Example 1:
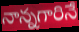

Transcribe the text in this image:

నాన్నగారినే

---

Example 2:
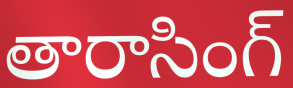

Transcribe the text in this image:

తారాసింగ్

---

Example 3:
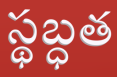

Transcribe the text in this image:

స్థబ్ధత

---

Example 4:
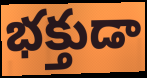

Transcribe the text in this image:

భక్తుడా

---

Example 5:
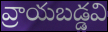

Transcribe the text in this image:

వ్రాయబడ్డవి